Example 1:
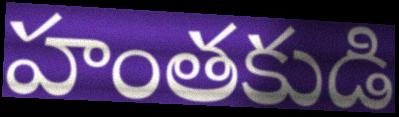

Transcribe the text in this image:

హంతకుడి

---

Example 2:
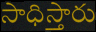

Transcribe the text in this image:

సాధిస్తారు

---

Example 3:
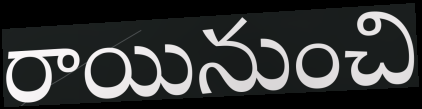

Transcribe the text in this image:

రాయినుంచి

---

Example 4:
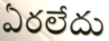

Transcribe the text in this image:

ఏరలేదు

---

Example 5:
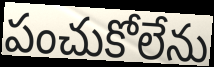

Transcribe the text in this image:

పంచుకోలేను